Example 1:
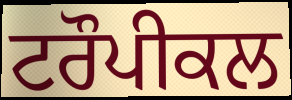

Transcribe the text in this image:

ਟਰੌਪੀਕਲ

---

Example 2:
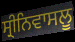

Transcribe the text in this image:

ਸ੍ਰੀਨਿਵਾਸਲੂ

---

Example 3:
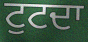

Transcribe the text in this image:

ਟੁਟਦਾ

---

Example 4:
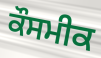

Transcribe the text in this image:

ਕੌਸਮੀਕ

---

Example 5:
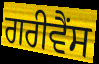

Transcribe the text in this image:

ਗਰੀਵੈਂਸ